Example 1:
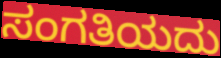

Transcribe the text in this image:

ಸಂಗತಿಯದು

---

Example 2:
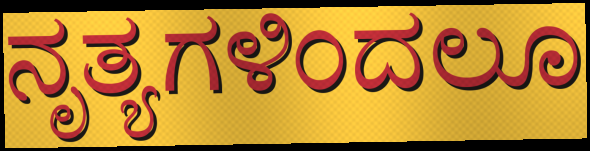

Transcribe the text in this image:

ನೃತ್ಯಗಳಿಂದಲೂ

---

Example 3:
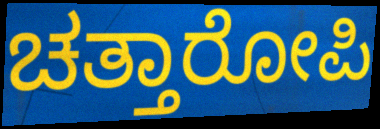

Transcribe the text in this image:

ಚತ್ತಾರೋಪಿ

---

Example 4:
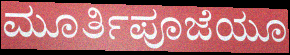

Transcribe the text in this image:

ಮೂರ್ತಿಪೂಜೆಯೂ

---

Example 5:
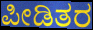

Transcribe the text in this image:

ಪೀಡಿತರ